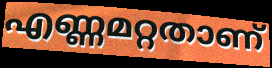
എണ്ണമറ്റതാണ്